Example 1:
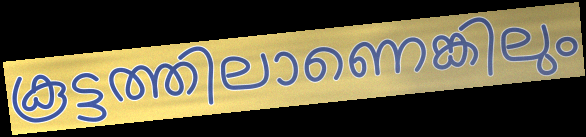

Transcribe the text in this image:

കൂട്ടത്തിലാണെങ്കിലും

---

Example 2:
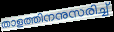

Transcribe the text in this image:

താളത്തിനനുസരിച്ച്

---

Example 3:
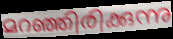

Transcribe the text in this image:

മറഞ്ഞിരിക്കുന്നു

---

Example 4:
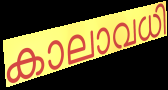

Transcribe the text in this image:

കാലാവധി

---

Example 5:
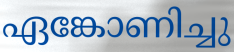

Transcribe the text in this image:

ഏങ്കോണിച്ചു